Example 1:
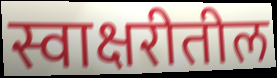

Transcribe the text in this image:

स्वाक्षरीतील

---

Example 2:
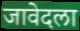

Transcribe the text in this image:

जावेदला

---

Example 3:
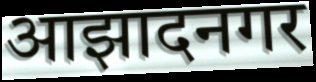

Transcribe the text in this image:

आझादनगर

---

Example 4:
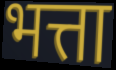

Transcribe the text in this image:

भत्ता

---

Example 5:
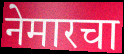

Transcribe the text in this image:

नेमारचा